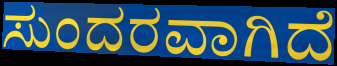
ಸುಂದರವಾಗಿದೆ